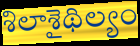
శిలాశైథిల్యం